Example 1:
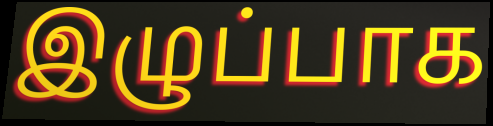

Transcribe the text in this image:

இழுப்பாக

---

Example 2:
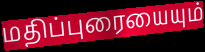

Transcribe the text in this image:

மதிப்புரையையும்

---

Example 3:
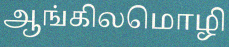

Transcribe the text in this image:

ஆங்கிலமொழி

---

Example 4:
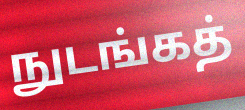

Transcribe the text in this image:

நுடங்கத்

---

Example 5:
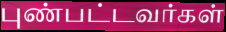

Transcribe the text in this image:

புண்பட்டவர்கள்